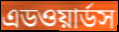
এডওয়ার্ডস